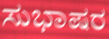
ಸುಭಾಷರ